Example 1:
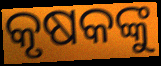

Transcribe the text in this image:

କୃଷକଙ୍କୁ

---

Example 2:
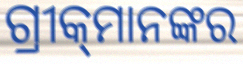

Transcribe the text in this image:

ଗ୍ରୀକ୍‌ମାନଙ୍କର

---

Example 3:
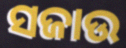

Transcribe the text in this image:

ସଜାଉ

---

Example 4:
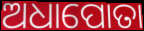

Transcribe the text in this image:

ଅଧାପୋତା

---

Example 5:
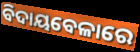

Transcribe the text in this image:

ବିଦାୟବେଳାରେ